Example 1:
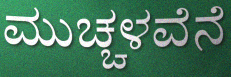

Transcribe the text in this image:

ಮುಚ್ಚಳವೆನೆ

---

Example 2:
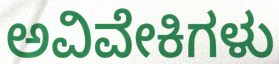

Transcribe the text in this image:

ಅವಿವೇಕಿಗಳು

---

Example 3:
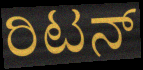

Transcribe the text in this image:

ರಿಟನ್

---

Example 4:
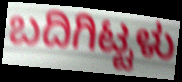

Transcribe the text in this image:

ಬದಿಗಿಟ್ಟಳು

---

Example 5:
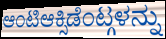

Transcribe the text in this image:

ಆಂಟಿಆಕ್ಸಿಡೆಂಟ್ಗಳನ್ನು